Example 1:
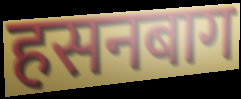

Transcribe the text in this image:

हसनबाग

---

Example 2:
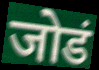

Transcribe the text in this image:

जोडं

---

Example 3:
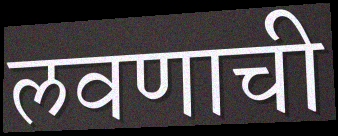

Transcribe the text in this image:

लवणाची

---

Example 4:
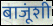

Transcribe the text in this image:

बाजूंशी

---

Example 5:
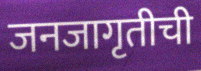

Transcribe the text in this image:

जनजागृतीची